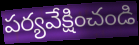
పర్యవేక్షించండి